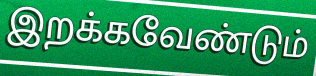
இறக்கவேண்டும்